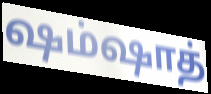
ஷம்ஷாத்